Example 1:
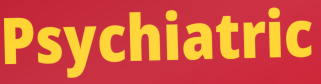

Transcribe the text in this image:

Psychiatric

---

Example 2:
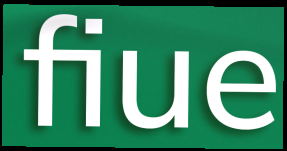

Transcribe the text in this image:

fiue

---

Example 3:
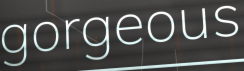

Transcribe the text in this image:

gorgeous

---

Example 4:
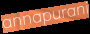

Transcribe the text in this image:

annapurani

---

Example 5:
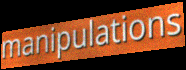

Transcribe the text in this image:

manipulations